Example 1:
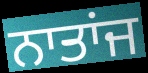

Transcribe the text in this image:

ਨਾਤਾਂਜ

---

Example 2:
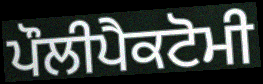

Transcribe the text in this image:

ਪੌਲੀਪੈਕਟੋਮੀ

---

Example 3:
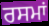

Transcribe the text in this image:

ਰਸਮਾਂ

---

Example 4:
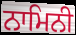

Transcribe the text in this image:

ਨਾਮਿਨੀ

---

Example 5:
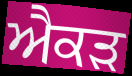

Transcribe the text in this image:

ਐਕੜ